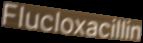
Flucloxacillin